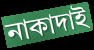
নাকাদাই